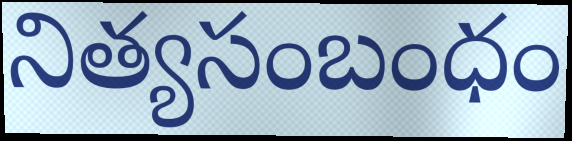
నిత్యసంబంధం